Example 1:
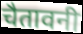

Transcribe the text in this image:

चैतावनी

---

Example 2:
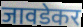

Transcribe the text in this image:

जावडेकर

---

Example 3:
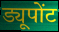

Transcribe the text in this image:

ड्यूपोंट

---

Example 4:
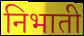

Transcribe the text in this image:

निभाती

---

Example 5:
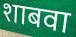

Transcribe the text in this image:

शाबवा